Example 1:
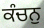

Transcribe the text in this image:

ਕੰਚਨੁ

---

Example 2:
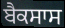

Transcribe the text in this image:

ਬੈਕਸਾਸ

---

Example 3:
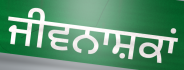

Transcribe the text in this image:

ਜੀਵਨਾਸ਼ਕਾਂ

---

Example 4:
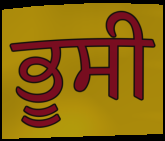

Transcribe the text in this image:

ਭੂਸੀ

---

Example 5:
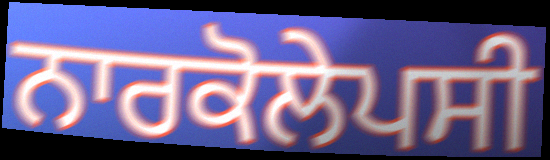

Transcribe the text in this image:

ਨਾਰਕੋਲੇਪਸੀ